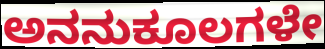
ಅನನುಕೂಲಗಳೇ